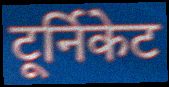
टूर्निकेट